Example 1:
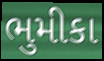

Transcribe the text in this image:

ભુમીકા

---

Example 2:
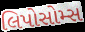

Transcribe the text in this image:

લિપોસોમ્સ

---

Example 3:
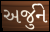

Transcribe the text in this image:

અર્જુને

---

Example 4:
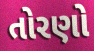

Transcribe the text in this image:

તોરણો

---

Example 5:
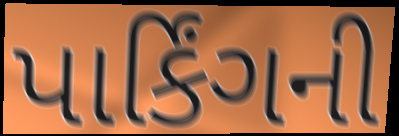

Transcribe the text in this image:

પાર્કિંગની